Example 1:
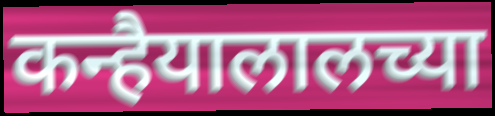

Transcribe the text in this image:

कन्हैयालालच्या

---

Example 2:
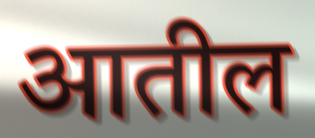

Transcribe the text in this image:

आतील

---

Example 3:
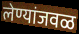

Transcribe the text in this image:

लेण्यांजवळ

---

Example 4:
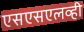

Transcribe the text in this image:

एसएसएलव्ही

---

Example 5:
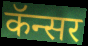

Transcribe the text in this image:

कॅन्सर